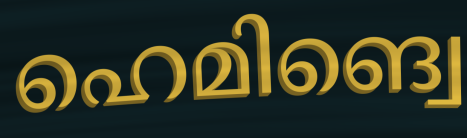
ഹെമിങ്വെ